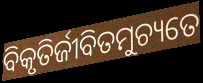
ବିକୃତିର୍ଜୀବିତମୁଚ୍ୟତେ